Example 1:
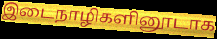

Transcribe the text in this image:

இடைநாழிகளினூடாக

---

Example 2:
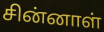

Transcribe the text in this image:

சின்னாள்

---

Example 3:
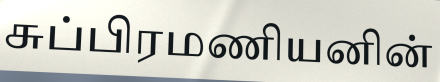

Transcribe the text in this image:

சுப்பிரமணியனின்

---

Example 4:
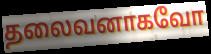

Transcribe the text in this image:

தலைவனாகவோ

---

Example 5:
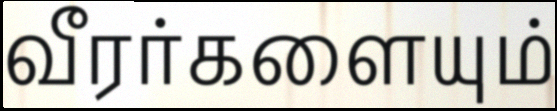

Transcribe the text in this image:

வீரர்களையும்